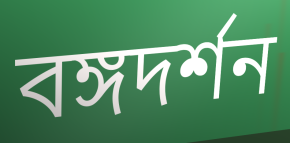
বঙ্গদর্শন